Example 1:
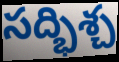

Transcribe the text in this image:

సద్భిశ్చ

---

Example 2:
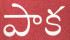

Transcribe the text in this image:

పాక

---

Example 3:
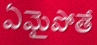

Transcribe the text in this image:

ఏమైపోతే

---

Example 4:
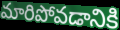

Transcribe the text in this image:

మారిపోవడానికి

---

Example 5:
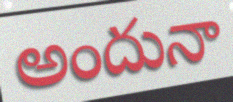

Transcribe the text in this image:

అందునా